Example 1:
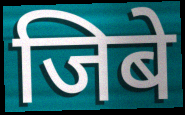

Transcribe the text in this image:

जिबे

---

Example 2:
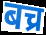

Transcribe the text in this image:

बच्र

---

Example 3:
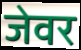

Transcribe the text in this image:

जेवर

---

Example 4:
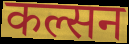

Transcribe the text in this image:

कल्सन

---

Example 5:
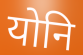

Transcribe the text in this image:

योनि